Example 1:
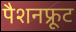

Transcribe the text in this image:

पैशनफ्रूट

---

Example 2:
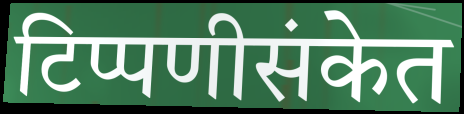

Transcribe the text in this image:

टिप्पणीसंकेत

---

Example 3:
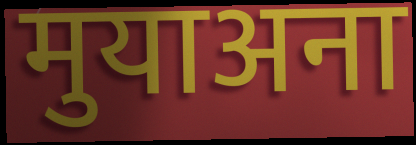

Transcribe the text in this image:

मुयाअना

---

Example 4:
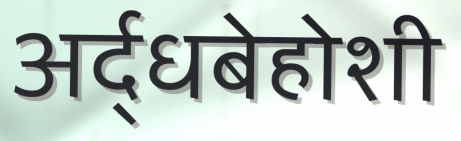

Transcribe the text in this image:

अर्द्धबेहोशी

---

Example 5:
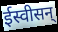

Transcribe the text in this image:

ईस्वीसन्